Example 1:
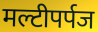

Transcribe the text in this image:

मल्टीपर्पज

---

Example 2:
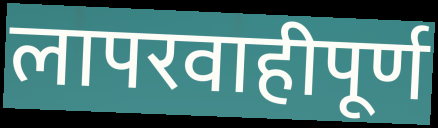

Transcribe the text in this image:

लापरवाहीपूर्ण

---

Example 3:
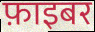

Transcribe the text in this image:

फ़ाइबर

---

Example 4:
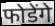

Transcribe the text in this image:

फोडेंगे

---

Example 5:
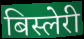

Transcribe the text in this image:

बिस्लेरी